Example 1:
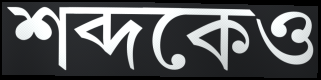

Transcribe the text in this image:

শব্দকেও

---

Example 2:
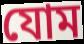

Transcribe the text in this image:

যোম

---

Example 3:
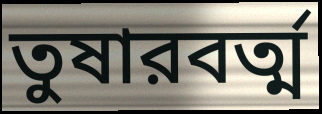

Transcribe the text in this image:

তুষারবর্ত্ম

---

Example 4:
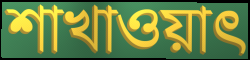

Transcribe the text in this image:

শাখাওয়াৎ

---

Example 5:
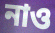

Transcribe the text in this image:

নাও